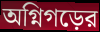
অগ্নিগড়ের